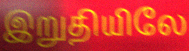
இறுதியிலே